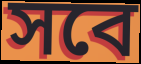
সবে